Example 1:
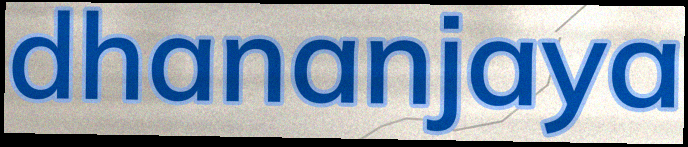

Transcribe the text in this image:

dhananjaya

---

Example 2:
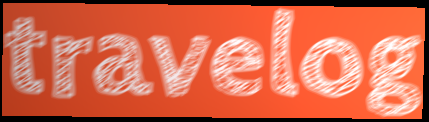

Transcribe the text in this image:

travelog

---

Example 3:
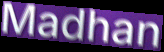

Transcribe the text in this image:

Madhan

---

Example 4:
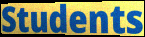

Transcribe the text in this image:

Students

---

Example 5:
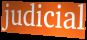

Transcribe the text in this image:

judicial